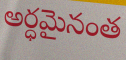
అర్ధమైనంత